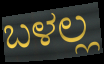
ಬಳಲ್ಲ